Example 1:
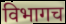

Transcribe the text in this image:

विभागच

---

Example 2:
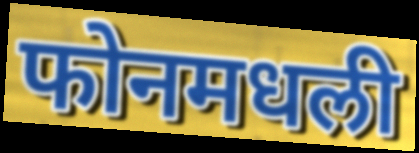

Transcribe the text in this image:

फोनमधली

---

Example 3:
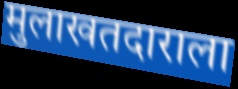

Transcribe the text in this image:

मुलाखतदाराला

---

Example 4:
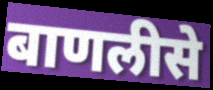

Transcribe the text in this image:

बाणलीसे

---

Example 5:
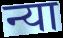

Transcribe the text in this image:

न्या